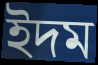
ইদম